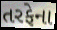
તરફેના